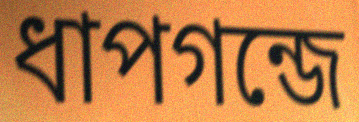
ধাপগন্জে